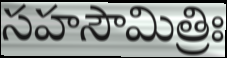
సహసౌమిత్రిః